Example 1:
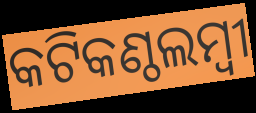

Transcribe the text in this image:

କଟିକଣ୍ଠଲମ୍ବୀ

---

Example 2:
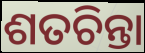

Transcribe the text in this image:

ଶତଚିନ୍ତା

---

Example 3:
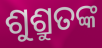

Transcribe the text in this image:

ଶୁଶ୍ରୁତଙ୍କ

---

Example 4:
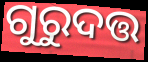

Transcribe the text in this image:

ଗୁରୁଦତ୍ତ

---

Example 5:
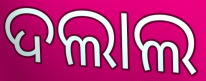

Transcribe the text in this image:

ଦଲାଲ